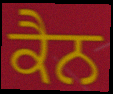
ਕੈਨ